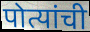
पोत्यांची